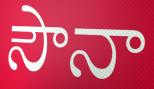
సౌనా